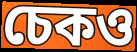
চেকও